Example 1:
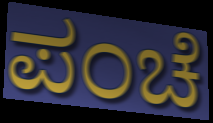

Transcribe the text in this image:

ಪಂಚೆ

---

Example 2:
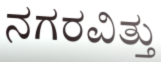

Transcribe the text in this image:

ನಗರವಿತ್ತು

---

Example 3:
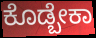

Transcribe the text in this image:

ಕೊಡ್ಬೇಕಾ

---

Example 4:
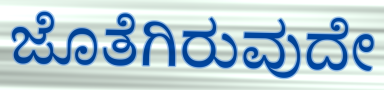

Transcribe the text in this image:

ಜೊತೆಗಿರುವುದೇ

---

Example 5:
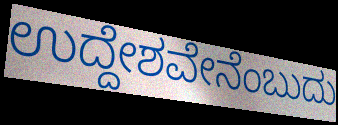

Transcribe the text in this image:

ಉದ್ದೇಶವೇನೆಂಬುದು